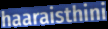
haaraisthini